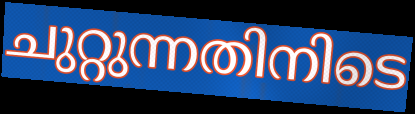
ചുറ്റുന്നതിനിടെ